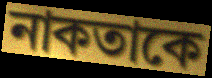
নাকতাকে